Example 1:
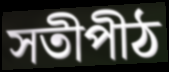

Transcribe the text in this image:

সতীপীঠ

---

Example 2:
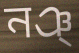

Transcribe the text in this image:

নঞ্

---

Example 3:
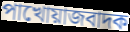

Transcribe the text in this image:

পাখোয়াজবাদক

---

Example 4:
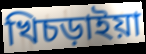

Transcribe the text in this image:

খিচড়াইয়া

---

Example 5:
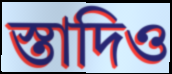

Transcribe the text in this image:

স্তাদিও